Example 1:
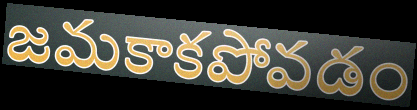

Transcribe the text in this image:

జమకాకపోవడం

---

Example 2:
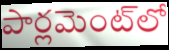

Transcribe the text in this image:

పార్లమెంట్‌లో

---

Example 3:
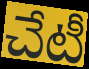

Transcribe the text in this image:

చేటీ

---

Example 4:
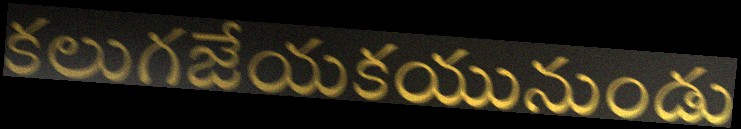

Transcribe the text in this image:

కలుగజేయకయునుండు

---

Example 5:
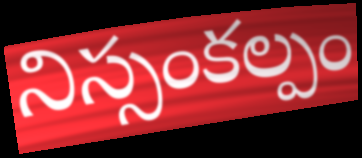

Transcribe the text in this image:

నిస్సంకల్పం